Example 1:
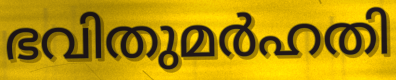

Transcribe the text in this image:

ഭവിതുമർഹതി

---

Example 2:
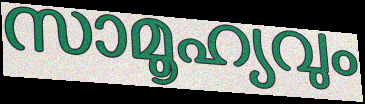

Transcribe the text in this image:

സാമൂഹ്യവും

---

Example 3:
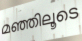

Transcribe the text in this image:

മഞ്ഞിലൂടെ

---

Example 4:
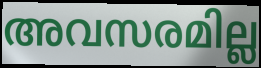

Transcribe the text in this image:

അവസരമില്ല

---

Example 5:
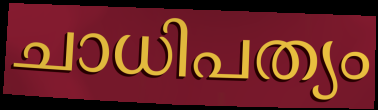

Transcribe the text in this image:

ചാധിപത്യം